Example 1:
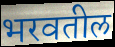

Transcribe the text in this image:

भरवतील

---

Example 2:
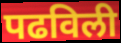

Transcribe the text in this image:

पढविली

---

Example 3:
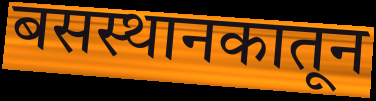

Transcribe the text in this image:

बसस्थानकातून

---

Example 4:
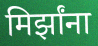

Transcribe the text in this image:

मिर्झांना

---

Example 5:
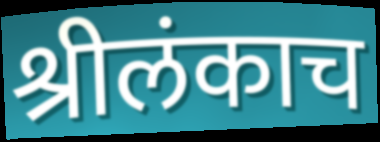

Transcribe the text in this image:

श्रीलंकाच